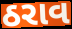
ઠરાવ